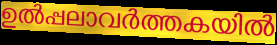
ഉൽപ്പലാവർത്തകയിൽ